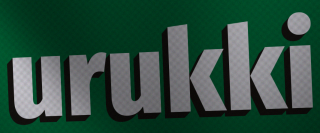
urukki